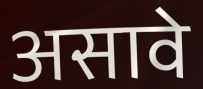
असावे